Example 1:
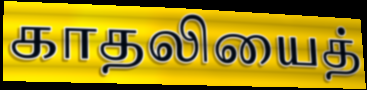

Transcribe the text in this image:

காதலியைத்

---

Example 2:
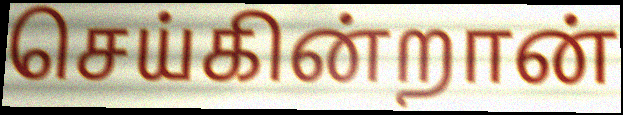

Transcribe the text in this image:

செய்கின்றான்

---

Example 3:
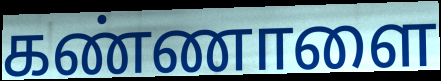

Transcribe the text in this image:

கண்ணாளை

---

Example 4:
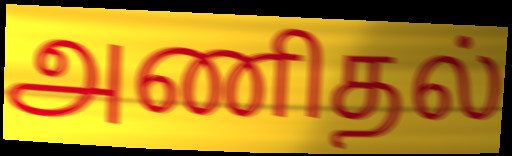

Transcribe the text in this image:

அணிதல்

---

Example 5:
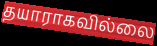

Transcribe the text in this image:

தயாராகவில்லை